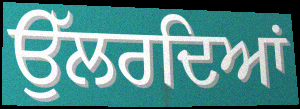
ਉੱਲਰਦਿਆਂ